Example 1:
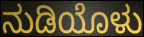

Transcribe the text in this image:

ನುಡಿಯೊಳು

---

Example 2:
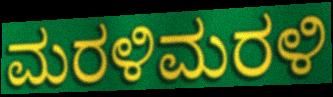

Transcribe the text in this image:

ಮರಳಿಮರಳಿ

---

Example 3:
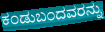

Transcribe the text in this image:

ಕಂಡುಬಂದವರನ್ನು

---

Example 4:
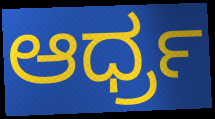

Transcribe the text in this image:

ಆರ್ಧ್ರ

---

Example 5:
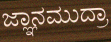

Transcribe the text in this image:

ಜ್ಞಾನಮುದ್ರಾ